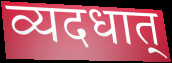
व्यदधात्